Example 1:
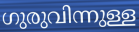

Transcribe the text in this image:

ഗുരുവിന്നുള്ള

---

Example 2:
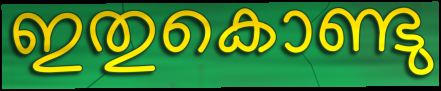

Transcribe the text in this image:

ഇതുകൊണ്ടു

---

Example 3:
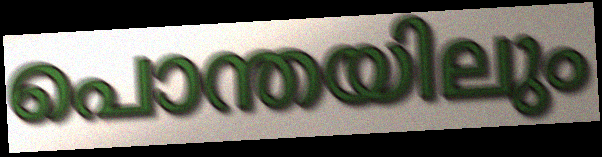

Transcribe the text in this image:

പൊന്തയിലും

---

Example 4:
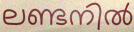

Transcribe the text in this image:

ലണ്ടനിൽ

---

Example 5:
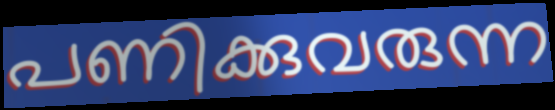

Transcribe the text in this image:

പണിക്കുവരുന്ന